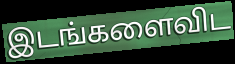
இடங்களைவிட